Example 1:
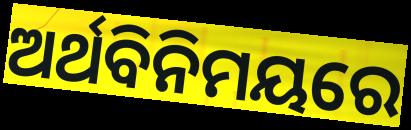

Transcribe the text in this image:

ଅର୍ଥବିନିମୟରେ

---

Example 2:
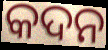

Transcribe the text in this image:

କଦନ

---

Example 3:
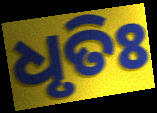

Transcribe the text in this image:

ଧୃତିଃ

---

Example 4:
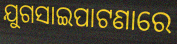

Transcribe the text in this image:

ଯୁଗସାଇପାଟଣାରେ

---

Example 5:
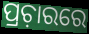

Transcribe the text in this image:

ପ୍ରଚ଼ାରରେ